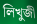
লিখুজী